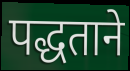
पद्धताने